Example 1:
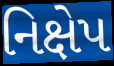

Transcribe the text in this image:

નિક્ષેપ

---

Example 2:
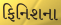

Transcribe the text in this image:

ફિનિશના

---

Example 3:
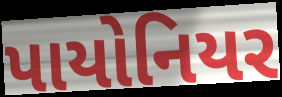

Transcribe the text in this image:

પાયોનિયર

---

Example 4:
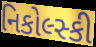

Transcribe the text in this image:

નિકોલ્સ્કી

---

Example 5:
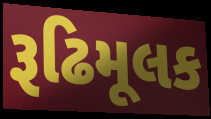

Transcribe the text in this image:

રૂઢિમૂલક